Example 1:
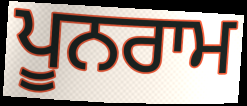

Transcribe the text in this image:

ਪੂਨਰਾਮ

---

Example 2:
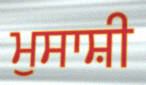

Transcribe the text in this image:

ਮੁਸਾਸ਼ੀ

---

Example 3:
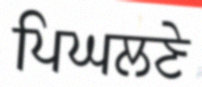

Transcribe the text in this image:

ਪਿਘਲਣੇ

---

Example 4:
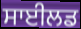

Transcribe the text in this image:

ਸਾਈਲਡ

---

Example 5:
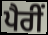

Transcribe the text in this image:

ਪੈਰੀਂ